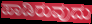
ಹಾಡಿರುವುದು